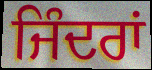
ਜਿੰਦਰਾਂ